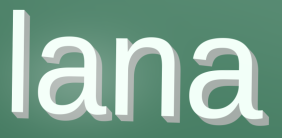
lana